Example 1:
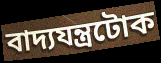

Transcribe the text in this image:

বাদ্যযন্ত্ৰটোক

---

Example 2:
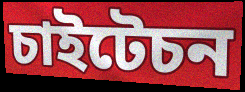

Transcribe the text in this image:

চাইটেচন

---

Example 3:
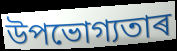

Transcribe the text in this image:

উপভোগ্যতাৰ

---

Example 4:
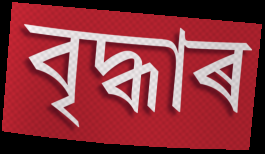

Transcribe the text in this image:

বৃদ্ধাৰ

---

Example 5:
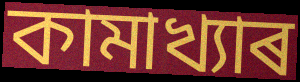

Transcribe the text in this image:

কামাখ্যাৰ